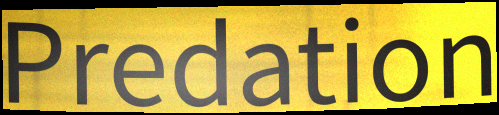
Predation